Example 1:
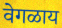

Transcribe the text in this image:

वेगळाय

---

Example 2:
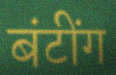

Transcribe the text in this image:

बंटींग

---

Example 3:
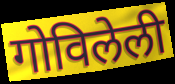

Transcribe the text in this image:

गोविलेली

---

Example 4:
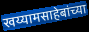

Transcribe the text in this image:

खय्यामसाहेबांच्या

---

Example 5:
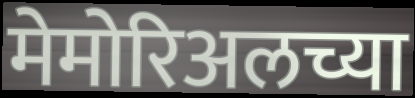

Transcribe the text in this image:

मेमोरिअलच्या